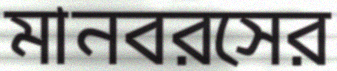
মানবরসের